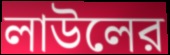
লাউলের